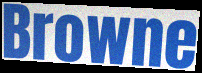
Browne